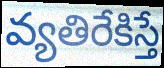
వ్యతిరేకిస్తే